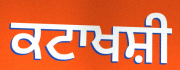
ਕਟਾਖਸ਼ੀ